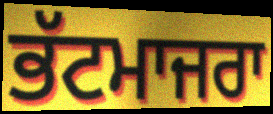
ਭੱਟਮਾਜਰਾ